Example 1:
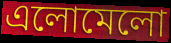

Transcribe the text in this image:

এলোমেলো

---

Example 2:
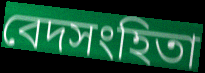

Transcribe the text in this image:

বেদসংহিতা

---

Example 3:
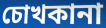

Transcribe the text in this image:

চোখকানা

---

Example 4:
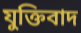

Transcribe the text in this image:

যুক্তিবাদ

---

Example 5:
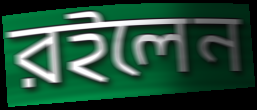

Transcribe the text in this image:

রইলেন